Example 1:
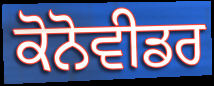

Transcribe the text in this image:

ਕੋਨੋਵੀਡਰ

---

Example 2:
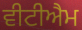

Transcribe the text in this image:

ਵੀਟੀਐਮ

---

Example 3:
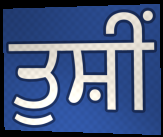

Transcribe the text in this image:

ਤੁਸ਼ੀਂ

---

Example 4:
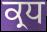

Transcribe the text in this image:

ਕ੍ਰਧ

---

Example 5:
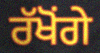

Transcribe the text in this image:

ਰੱਖੋਂਗੇ